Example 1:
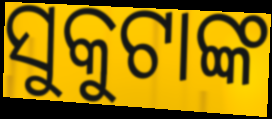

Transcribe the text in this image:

ସୁକୁଟାଙ୍କ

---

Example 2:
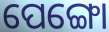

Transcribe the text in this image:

ପେଙ୍ଗୋ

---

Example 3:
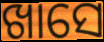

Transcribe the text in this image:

ଖାସେ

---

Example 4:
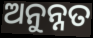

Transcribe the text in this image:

ଅନୁନ୍ନତ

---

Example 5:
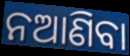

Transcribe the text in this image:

ନଆଣିବା